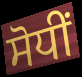
ਸੋਧੀਂ